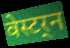
वेस्टर्न